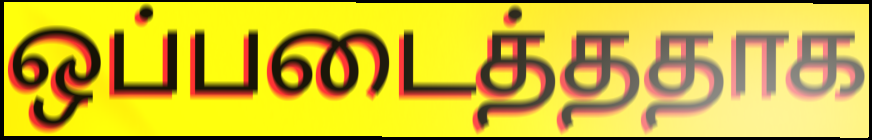
ஒப்படைத்ததாக